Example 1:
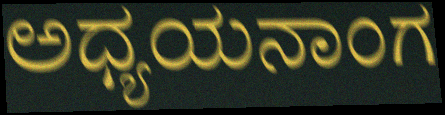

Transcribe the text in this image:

ಅಧ್ಯಯನಾಂಗ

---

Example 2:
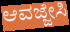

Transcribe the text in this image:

ಆವಜ್ಜೇಸಿ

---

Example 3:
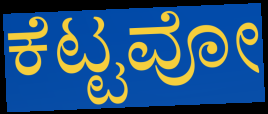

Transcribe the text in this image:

ಕೆಟ್ಟವೋ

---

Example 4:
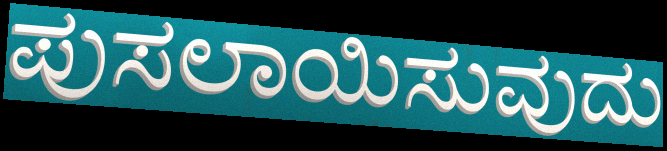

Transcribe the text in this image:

ಪುಸಲಾಯಿಸುವುದು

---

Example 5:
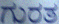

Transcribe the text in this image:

ಗುರತ